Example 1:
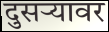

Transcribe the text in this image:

दुसऱ्यावर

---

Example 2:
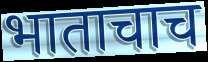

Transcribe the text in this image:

भाताचाच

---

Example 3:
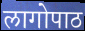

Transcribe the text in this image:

लागोपाठ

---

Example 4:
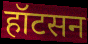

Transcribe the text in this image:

हॉटसन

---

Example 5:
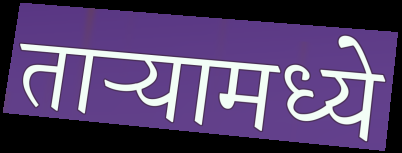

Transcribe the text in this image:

ताऱ्यामध्ये